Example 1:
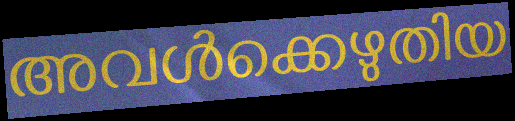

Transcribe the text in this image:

അവൾക്കെഴുതിയ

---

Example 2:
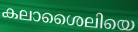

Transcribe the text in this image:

കലാശൈലിയെ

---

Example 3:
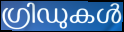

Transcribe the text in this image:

ഗ്രിഡുകൾ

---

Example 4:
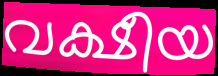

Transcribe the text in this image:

വക്ഷീയ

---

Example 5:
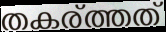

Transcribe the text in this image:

തകര്ത്തത്